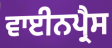
ਵਾਈਨਪ੍ਰੈਸ